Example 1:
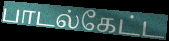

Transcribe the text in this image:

பாடல்கேட்ட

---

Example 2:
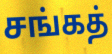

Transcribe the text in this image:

சங்கத்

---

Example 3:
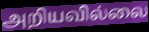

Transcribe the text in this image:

அறியவில்லை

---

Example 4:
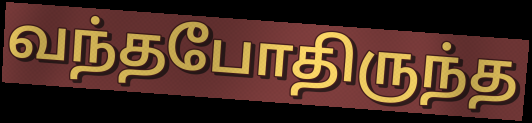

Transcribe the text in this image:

வந்தபோதிருந்த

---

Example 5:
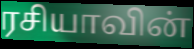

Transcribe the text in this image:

ரசியாவின்